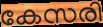
കേസരി